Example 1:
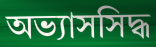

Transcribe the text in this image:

অভ্যাসসিদ্ধ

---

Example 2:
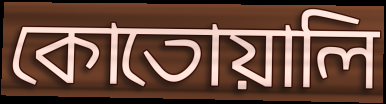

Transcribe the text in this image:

কোতোয়ালি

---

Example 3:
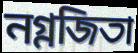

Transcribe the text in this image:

নগ্নজিতা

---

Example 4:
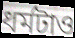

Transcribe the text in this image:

ধর্মটাও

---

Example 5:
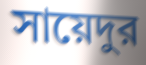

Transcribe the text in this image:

সায়েদুর